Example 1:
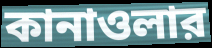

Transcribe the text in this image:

কানাওলার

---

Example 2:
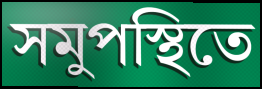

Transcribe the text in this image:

সমুপস্থিতে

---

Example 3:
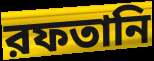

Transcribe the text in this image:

রফতানি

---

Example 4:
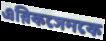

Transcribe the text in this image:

এরিকসেনকে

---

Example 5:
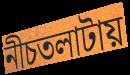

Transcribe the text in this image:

নীচতলাটায়